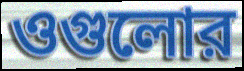
ওগুলোর